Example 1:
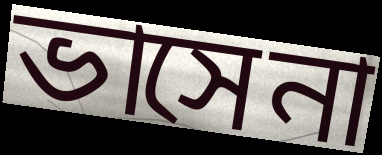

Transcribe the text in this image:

ভাসেনা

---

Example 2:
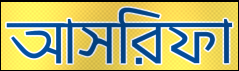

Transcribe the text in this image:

আসরিফা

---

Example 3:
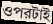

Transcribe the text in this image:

ওপরটাই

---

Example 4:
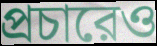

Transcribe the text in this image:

প্রচারেও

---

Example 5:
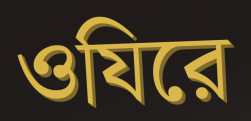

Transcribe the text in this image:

ওযিরে